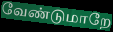
வேண்டுமாறே